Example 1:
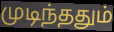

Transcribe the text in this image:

முடிந்ததும்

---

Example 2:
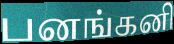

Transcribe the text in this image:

பனங்கனி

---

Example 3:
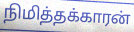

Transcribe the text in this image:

நிமித்தக்காரன்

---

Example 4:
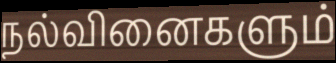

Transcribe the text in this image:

நல்வினைகளும்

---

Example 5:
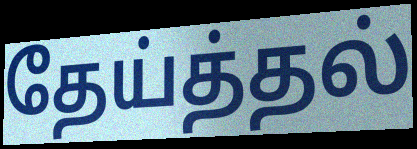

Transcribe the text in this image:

தேய்த்தல்